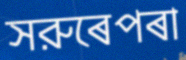
সৰুৰেপৰা